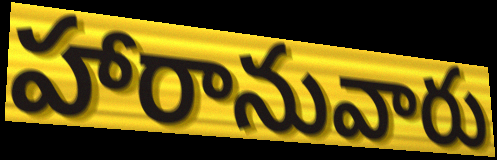
హారానువారు